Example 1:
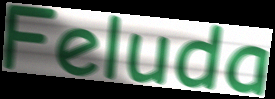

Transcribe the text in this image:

Feluda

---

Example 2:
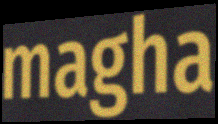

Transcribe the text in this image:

magha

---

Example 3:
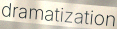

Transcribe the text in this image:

dramatization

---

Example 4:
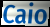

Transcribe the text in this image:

Caio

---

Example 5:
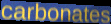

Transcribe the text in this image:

carbonates